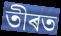
তীৰত